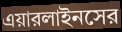
এয়ারলাইনসের